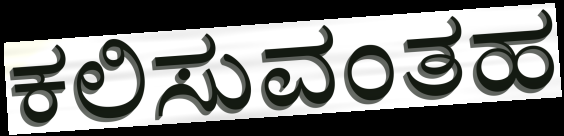
ಕಲಿಸುವಂತಹ